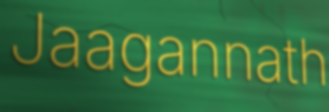
Jaagannath